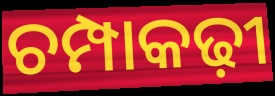
ଚମ୍ପାକଢ଼ୀ